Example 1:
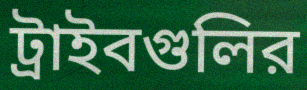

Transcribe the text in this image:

ট্রাইবগুলির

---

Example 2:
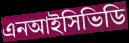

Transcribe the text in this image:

এনআইসিভিডি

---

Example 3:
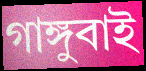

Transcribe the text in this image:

গাঙ্গুবাই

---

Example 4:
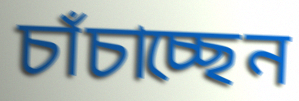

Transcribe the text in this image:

চাঁচাচ্ছেন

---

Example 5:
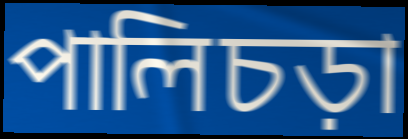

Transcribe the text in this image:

পালিচড়া